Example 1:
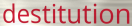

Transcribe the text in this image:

destitution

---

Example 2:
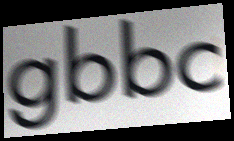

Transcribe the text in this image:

gbbc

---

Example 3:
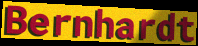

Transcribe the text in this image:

Bernhardt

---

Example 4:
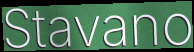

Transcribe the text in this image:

Stavano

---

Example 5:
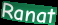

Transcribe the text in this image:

Ranat